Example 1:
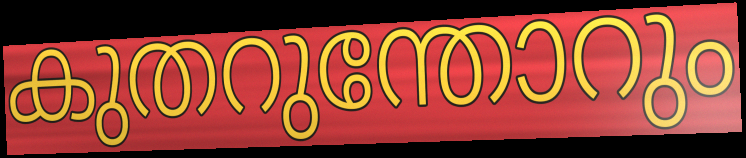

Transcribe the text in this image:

കുതറുന്തോറും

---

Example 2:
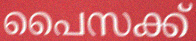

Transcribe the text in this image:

പൈസക്ക്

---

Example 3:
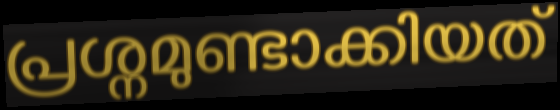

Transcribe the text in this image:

പ്രശ്നമുണ്ടാക്കിയത്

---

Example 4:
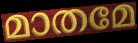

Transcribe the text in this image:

മാതമേ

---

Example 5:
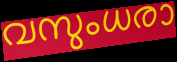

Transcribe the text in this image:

വസുംധരാ